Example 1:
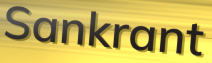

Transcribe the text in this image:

Sankrant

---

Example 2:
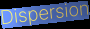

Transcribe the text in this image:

Dispersion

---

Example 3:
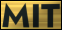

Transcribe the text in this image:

MIT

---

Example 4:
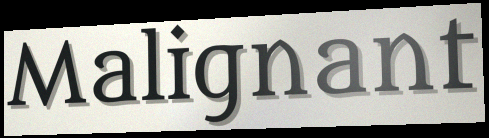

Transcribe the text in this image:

Malignant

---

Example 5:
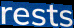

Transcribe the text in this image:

rests